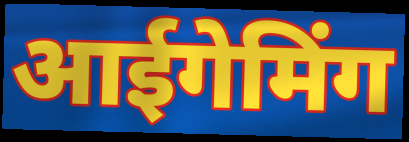
आईगेमिंग